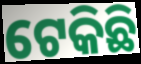
ଟେକିଛି